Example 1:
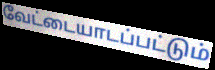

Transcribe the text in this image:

வேட்டையாடப்பட்டும்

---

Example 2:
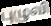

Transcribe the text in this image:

புழுவி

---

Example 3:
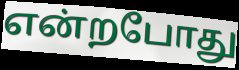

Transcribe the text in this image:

என்றபோது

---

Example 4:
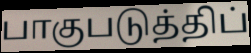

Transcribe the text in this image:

பாகுபடுத்திப்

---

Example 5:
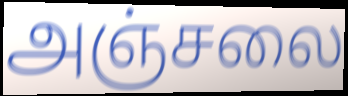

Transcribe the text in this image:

அஞ்சலை